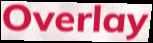
Overlay